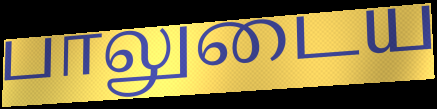
பாலுடைய